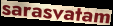
sarasvatam